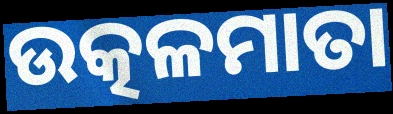
ଉତ୍କଳମାତା